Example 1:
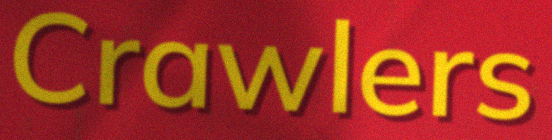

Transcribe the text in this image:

Crawlers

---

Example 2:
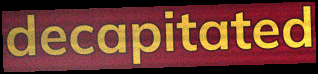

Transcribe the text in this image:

decapitated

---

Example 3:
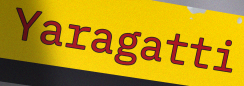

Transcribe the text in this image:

Yaragatti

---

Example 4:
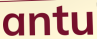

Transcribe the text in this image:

antu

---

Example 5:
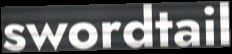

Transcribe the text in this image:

swordtail